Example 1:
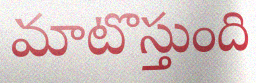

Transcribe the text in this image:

మాటొస్తుంది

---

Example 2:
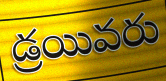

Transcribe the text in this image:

డ్రయివరు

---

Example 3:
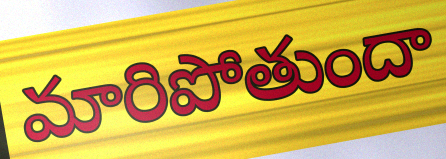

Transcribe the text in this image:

మారిపోతుందా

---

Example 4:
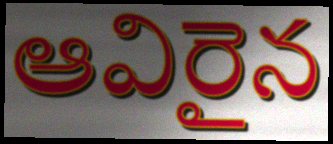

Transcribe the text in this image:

ఆవిరైన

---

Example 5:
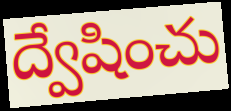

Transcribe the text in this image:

ద్వేషించు